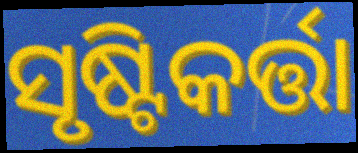
ସୃଷ୍ଟିକର୍ତ୍ତା